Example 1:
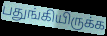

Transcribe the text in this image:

பதுங்கியிருக்க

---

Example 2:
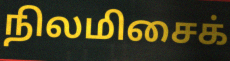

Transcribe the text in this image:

நிலமிசைக்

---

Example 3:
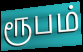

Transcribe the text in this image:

ரூபம்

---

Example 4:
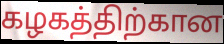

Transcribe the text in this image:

கழகத்திற்கான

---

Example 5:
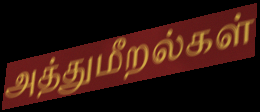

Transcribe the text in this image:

அத்துமீறல்கள்